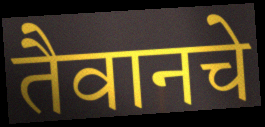
तैवानचे